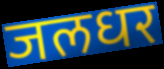
जलधर